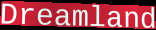
Dreamland